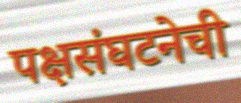
पक्षसंघटनेची